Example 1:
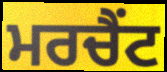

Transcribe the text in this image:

ਮਰਚੈਂਟ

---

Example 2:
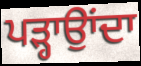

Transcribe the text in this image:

ਪੜ੍ਹਾਉਾਂਦਾ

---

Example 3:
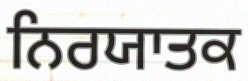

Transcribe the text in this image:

ਨਿਰਯਾਤਕ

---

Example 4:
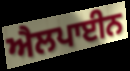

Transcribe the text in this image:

ਐਲਪਾਈਨ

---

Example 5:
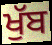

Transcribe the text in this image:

ਖੁੱਬ